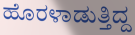
ಹೊರಳಾಡುತ್ತಿದ್ದ